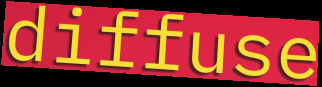
diffuse